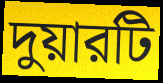
দুয়ারটি